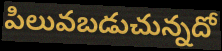
పిలువబడుచున్నదో